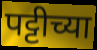
पट्टीच्या